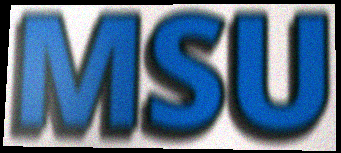
MSU